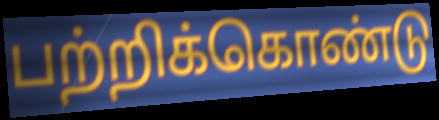
பற்றிக்கொண்டு